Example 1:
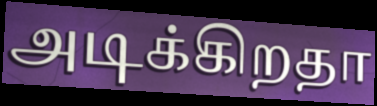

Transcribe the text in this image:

அடிக்கிறதா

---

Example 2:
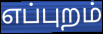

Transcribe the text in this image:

எப்புறம்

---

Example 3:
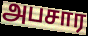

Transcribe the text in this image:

அபசார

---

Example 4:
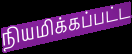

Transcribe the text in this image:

நியமிக்கப்பட்ட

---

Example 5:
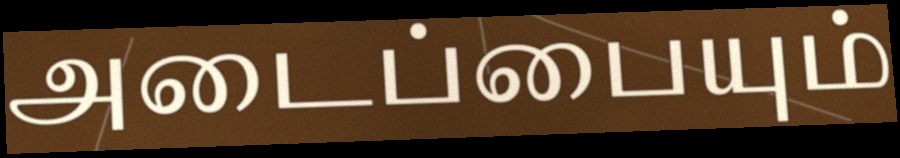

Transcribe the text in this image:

அடைப்பையும்